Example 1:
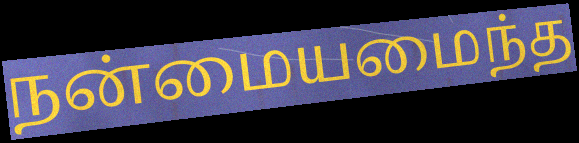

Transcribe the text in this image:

நன்மையமைந்த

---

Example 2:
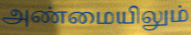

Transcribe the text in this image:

அண்மையிலும்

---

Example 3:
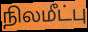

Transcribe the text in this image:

நிலமீட்பு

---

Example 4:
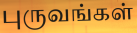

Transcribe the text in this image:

புருவங்கள்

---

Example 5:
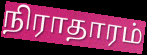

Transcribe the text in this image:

நிராதாரம்